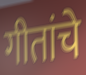
गीतांचे